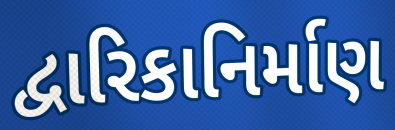
દ્વારિકાનિર્માણ